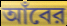
আঁবের